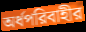
অর্ধপরিবাহীর